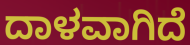
ದಾಳವಾಗಿದೆ